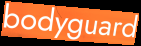
bodyguard